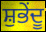
ਸ਼ੁਭੇਂਦੂ